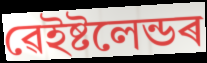
ৱেইষ্টলেন্ডৰ